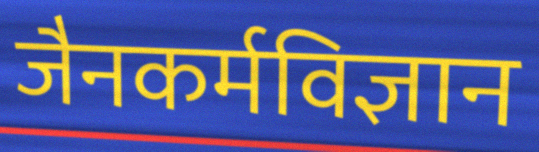
जैनकर्मविज्ञान